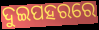
ଦୁଇପହରରେ